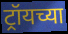
ट्रॉयच्या